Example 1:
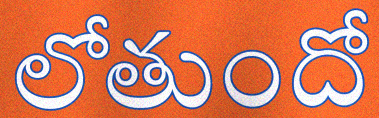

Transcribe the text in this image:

లోతుందో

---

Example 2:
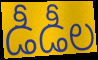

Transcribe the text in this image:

డీడీల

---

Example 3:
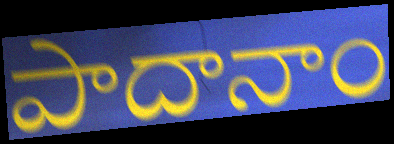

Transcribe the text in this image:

పాదానాం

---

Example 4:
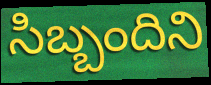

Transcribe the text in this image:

సిబ్బందిని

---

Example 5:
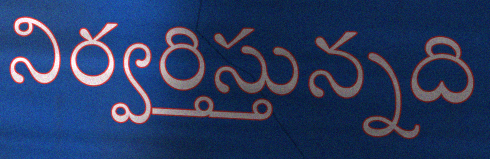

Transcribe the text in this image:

నిర్వర్తిస్తున్నది